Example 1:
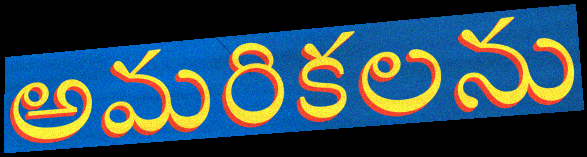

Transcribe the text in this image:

అమరికలను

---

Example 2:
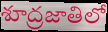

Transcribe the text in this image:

శూద్రజాతిలో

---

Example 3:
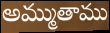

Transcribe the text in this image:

అమ్ముతాము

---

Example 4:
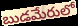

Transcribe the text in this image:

బుడమేరులో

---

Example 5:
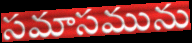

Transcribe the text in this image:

సమాసమును